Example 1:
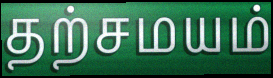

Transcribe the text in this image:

தற்சமயம்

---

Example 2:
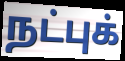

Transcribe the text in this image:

நட்புக்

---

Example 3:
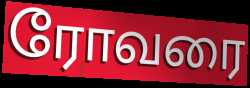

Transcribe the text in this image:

ரோவரை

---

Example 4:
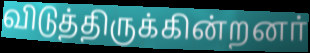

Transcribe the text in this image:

விடுத்திருக்கின்றனர்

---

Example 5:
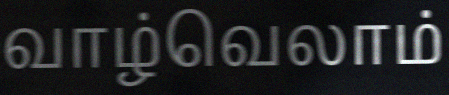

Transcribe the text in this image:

வாழ்வெலாம்